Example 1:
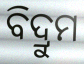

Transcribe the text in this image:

ବିଦ୍ରୁମ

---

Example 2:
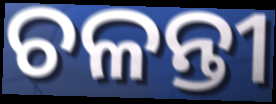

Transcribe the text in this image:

ଚଳନ୍ତୀ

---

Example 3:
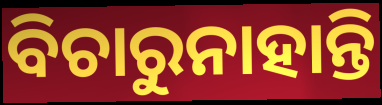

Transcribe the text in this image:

ବିଚାରୁନାହାନ୍ତି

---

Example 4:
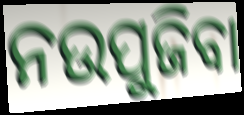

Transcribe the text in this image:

ନଉପୁଜିବା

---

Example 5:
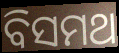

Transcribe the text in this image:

ବିସମଥ